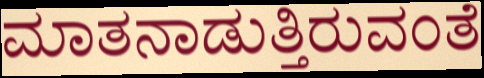
ಮಾತನಾಡುತ್ತಿರುವಂತೆ